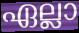
ഏല്ലാ